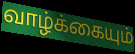
வாழ்க்கையும்